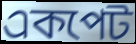
একপেট